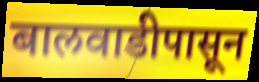
बालवाडीपासून